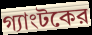
গ্যাংটকের